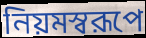
নিয়মস্বরূপে